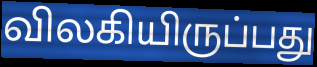
விலகியிருப்பது